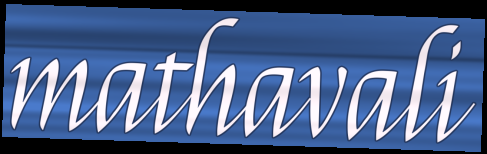
mathavali